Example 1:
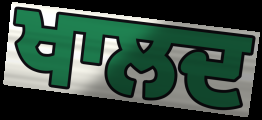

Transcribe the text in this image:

ਖਾਲਦ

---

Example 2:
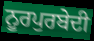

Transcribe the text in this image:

ਨੂਰਪੁਰਬੇਦੀ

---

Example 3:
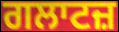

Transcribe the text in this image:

ਗਲਾਟਜ਼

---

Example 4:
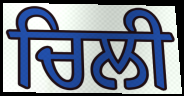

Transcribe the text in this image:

ਚਿਲੀ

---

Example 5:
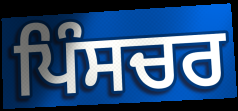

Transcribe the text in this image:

ਪਿੰਸਚਰ